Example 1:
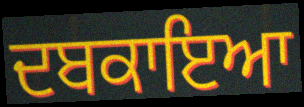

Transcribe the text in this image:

ਦਬਕਾਇਆ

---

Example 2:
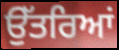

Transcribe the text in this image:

ਉੱਤਰਿਆਂ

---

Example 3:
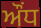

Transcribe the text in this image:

ਔਂਧ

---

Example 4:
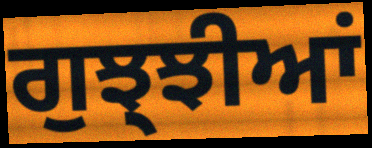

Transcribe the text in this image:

ਗੁਝ੍ਝੀਆਂ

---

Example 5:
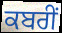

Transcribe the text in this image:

ਕਬਰੀਂ